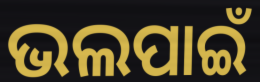
ଭଲପାଇଁ